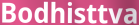
Bodhisttva